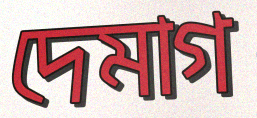
দেমাগ